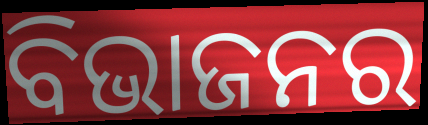
ବିଭାଜନର